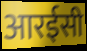
आरईसी